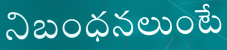
నిబంధనలుంటే